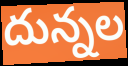
దున్నల